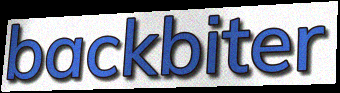
backbiter